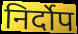
निर्दोप